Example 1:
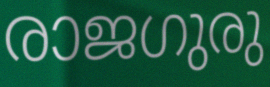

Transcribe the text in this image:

രാജഗുരു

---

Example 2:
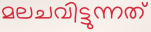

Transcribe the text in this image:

മലചവിട്ടുന്നത്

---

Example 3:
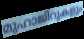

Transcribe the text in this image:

മുഹാജിറുകളും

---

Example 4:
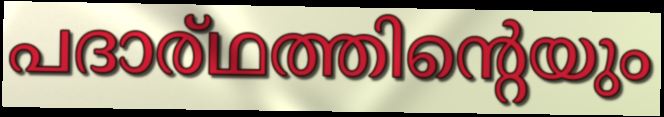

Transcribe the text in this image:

പദാര്ഥത്തിന്റെയും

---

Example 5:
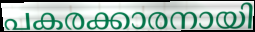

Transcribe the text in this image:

പകരക്കാരനായി